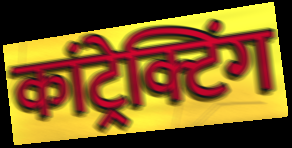
कांट्रेक्टिंग